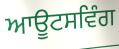
ਆਊਟਸਵਿੰਗ